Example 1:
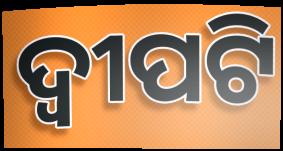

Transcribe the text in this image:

ଦ୍ୱୀପଟି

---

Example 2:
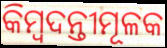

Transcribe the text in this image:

କିମ୍ବଦନ୍ତୀମୂଳକ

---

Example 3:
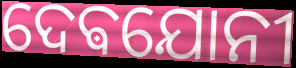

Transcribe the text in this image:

ଦେଵଯୋନୀ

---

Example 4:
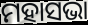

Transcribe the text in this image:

ମହାସଭା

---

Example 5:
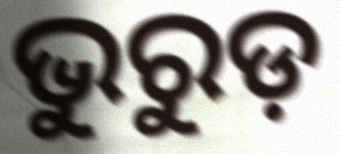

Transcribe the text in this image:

ଭୁରୁଡ଼